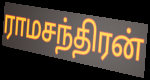
ராமசந்திரன்